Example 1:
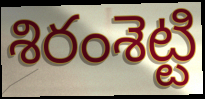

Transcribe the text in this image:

శిరంశెట్టి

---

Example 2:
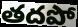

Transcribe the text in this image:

తదపో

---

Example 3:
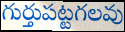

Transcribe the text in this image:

గుర్తుపట్టగలవు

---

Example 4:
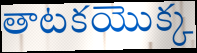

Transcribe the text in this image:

తాటకయొక్క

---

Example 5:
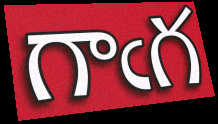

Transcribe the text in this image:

గాఁగ